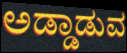
ಅಡ್ಡಾಡುವ